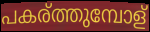
പകര്ത്തുമ്പോള്